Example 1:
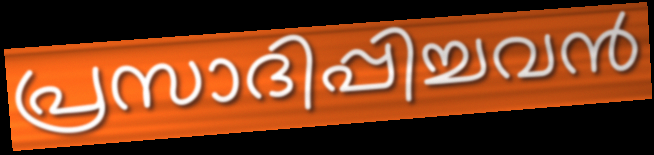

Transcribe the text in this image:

പ്രസാദിപ്പിച്ചവൻ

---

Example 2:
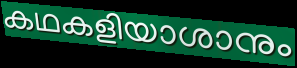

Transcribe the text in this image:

കഥകളിയാശാനും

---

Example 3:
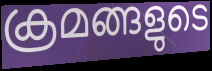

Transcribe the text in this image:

ക്രമങ്ങളുടെ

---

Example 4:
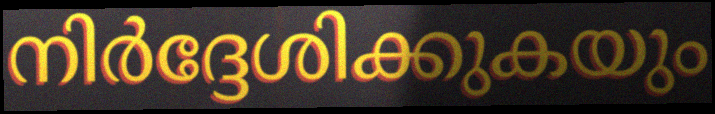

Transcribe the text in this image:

നിർദ്ദേശിക്കുകയും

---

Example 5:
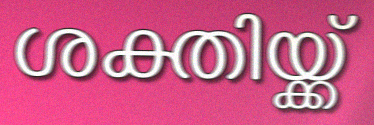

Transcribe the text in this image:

ശക്തിയ്ക്ക്